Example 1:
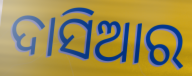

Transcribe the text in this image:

ଦାସିଆର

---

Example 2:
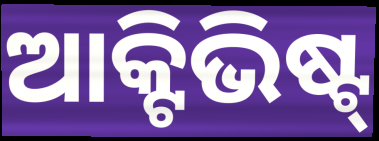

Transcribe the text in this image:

ଆକ୍ଟିଭିଷ୍ଟ୍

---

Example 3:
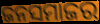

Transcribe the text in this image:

ଜନସମାଜର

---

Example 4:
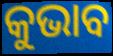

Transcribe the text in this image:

କୁଭାବ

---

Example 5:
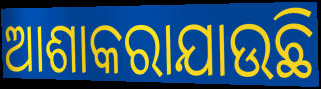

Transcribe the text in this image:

ଆଶାକରାଯାଉଛି